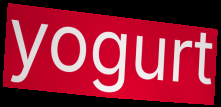
yogurt